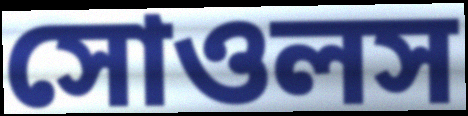
সোওলস